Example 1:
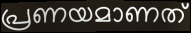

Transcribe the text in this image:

പ്രണയമാണത്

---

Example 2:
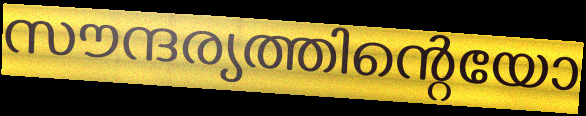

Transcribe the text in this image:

സൗന്ദര്യത്തിന്റെയോ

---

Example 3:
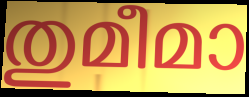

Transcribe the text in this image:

തുമീമാ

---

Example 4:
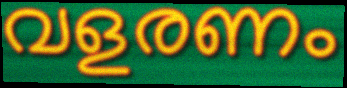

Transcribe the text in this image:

വളരണം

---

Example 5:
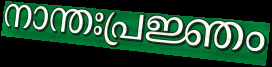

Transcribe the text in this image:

നാന്തഃപ്രജ്ഞം